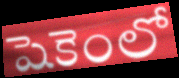
షెకెంలో